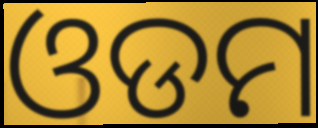
ଓଡମ